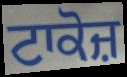
ਟਾਕੋਜ਼